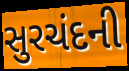
સુરચંદની